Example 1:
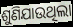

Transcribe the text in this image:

ଶୁଣିଯାଉଥିଲା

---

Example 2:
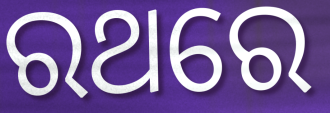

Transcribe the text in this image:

ରଥରେ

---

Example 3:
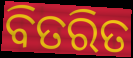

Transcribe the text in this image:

ବିତରିତ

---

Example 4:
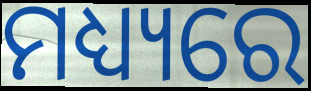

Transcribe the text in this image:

ମଧ୍ୟ୍ୟରେ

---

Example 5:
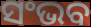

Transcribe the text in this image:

ସଂଭବ